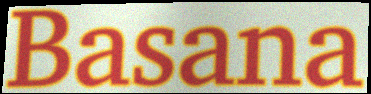
Basana